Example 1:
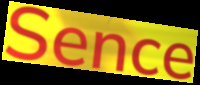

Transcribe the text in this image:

Sence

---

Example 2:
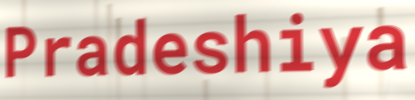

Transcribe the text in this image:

Pradeshiya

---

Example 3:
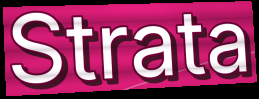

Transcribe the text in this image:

Strata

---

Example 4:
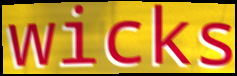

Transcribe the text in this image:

wicks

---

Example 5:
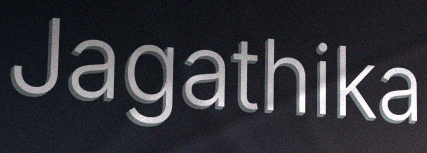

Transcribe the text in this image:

Jagathika